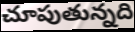
చూపుతున్నది